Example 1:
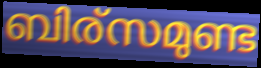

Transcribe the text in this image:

ബിര്സമുണ്ട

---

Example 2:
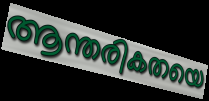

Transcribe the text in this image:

ആന്തരികതയെ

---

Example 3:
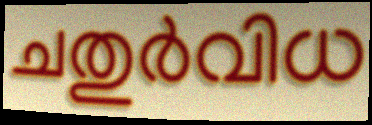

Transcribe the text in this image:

ചതുർവിധ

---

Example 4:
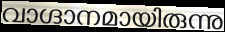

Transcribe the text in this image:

വാഗ്ദാനമായിരുന്നു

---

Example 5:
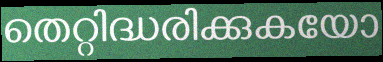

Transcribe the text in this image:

തെറ്റിദ്ധരിക്കുകയോ